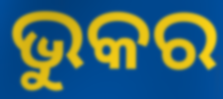
ଭୁକର